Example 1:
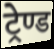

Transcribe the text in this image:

ट्रेण्ड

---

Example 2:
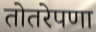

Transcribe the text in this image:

तोतरेपणा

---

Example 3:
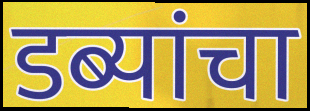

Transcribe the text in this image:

डब्यांचा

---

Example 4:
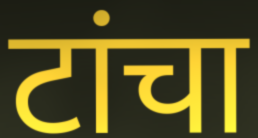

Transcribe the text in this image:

टांचा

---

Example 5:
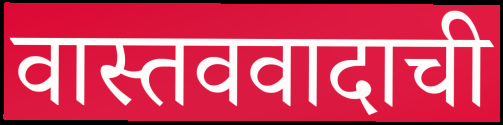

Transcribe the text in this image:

वास्तववादाची